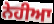
ਨੇਹੀਆ